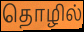
தொழில்